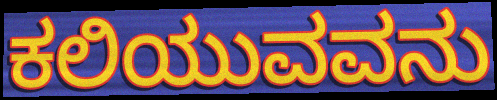
ಕಲಿಯುವವನು